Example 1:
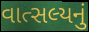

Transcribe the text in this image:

વાત્સલ્યનું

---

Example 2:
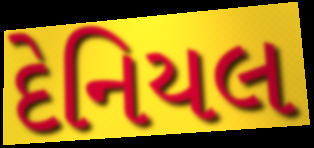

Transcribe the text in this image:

દેનિયલ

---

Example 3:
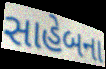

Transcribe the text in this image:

સાહેબના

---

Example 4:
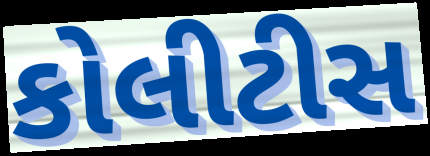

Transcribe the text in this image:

કોલીટીસ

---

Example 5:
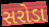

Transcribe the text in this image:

સરોડા